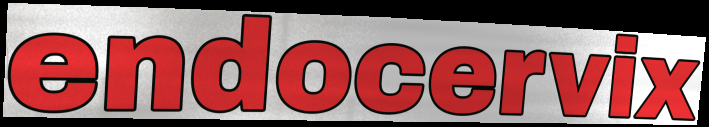
endocervix